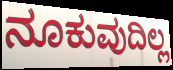
ನೂಕುವುದಿಲ್ಲ